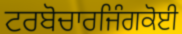
ਟਰਬੋਚਾਰਜਿੰਗਕੋਈ